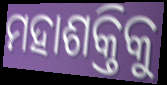
ମହାଶକ୍ତିକୁ